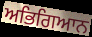
ਅਭਿਗਿਆਨ